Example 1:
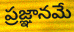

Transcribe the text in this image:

ప్రజ్ఞానమే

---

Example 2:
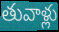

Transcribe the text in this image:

తువాళ్లు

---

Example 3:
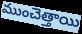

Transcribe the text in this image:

ముంచెత్తాయి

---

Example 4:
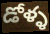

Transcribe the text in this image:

డోళ్ళ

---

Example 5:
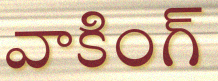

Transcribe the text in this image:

వాకింగ్